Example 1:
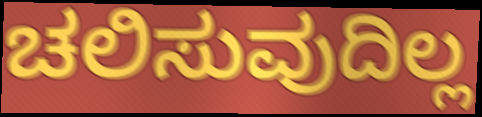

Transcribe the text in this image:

ಚಲಿಸುವುದಿಲ್ಲ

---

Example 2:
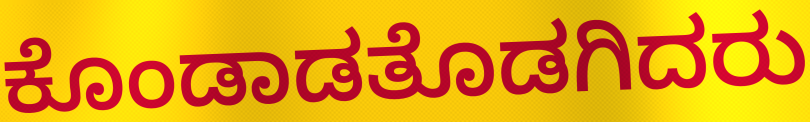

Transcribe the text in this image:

ಕೊಂಡಾಡತೊಡಗಿದರು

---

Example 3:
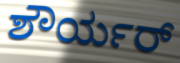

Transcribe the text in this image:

ಶೌರ್ಯರ್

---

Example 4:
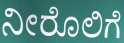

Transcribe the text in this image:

ನೀರೊಲಿಗೆ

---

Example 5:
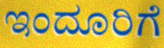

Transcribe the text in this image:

ಇಂದೂರಿಗೆ